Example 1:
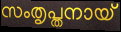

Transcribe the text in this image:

സംതൃപ്തനായ്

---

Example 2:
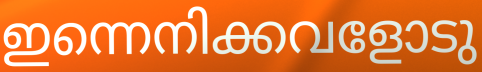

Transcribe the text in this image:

ഇന്നെനിക്കവളോടു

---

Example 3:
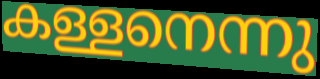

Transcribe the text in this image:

കള്ളനെന്നു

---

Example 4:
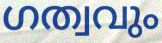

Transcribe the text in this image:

ഗത്വവും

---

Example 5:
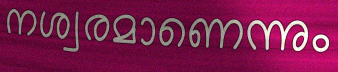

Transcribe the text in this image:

നശ്വരമാണെന്നും